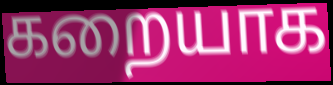
கறையாக